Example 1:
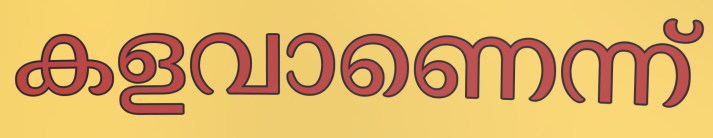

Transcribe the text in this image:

കളവാണെന്ന്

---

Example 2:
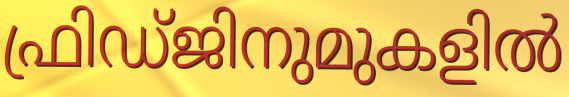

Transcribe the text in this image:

ഫ്രിഡ്ജിനുമുകളിൽ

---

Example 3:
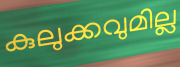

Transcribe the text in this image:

കുലുക്കവുമില്ല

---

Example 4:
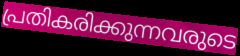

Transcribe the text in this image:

പ്രതികരിക്കുന്നവരുടെ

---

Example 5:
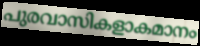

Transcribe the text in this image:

പുരവാസികളാകമാനം